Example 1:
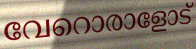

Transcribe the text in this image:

വേറൊരാളോട്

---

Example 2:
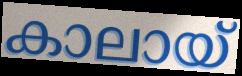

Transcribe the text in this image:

കാലായ്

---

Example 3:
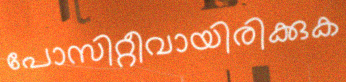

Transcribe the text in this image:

പോസിറ്റീവായിരിക്കുക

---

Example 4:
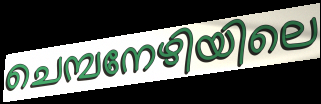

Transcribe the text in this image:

ചെമ്പനേഴിയിലെ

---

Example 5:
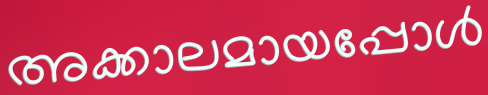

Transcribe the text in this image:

അക്കാലമായപ്പോൾ